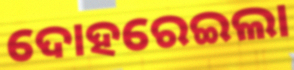
ଦୋହରେଇଲା